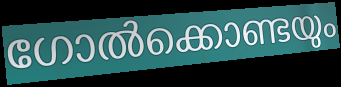
ഗോൽക്കൊണ്ടയും